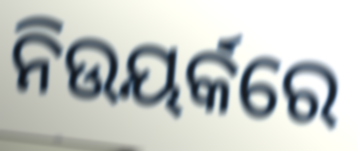
ନିଉୟର୍କରେ